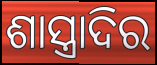
ଶାସ୍ତ୍ରାଦିର